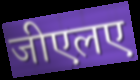
जीएलए